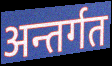
अन्तर्गत